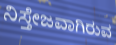
ನಿಸ್ತೇಜವಾಗಿರುವ